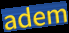
adem